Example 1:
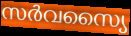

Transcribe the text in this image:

സർവസ്യൈ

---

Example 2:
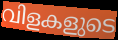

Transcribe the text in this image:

വിളകളുടെ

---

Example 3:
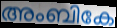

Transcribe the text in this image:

അംബികേ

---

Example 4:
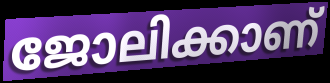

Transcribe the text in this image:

ജോലിക്കാണ്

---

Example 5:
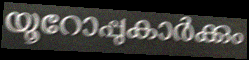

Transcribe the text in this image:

യൂറോപ്പുകാർക്കും